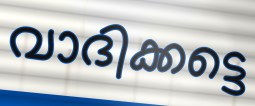
വാദിക്കട്ടെ